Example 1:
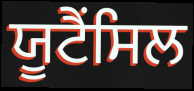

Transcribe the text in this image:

ਯੂਟੈਂਸਿਲ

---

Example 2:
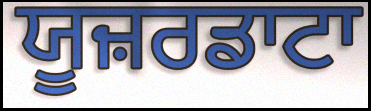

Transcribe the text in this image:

ਯੂਜ਼ਰਡਾਟਾ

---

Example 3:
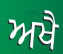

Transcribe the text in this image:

ਅਖੈ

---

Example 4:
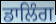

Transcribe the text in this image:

ਡਾਲਿੰਗ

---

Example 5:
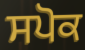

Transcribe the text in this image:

ਸਪੋਕ